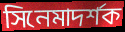
সিনেমাদর্শক